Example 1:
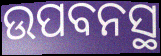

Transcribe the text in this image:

ଉପବନସ୍ଥ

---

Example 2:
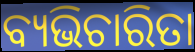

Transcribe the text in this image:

ବ୍ୟଭିଚାରିତା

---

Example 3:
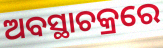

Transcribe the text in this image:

ଅବସ୍ଥାଚକ୍ରରେ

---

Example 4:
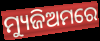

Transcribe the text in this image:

ମ୍ୟୁଜିଅମରେ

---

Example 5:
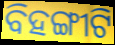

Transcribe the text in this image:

ବିହଙ୍ଗୀଟି